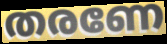
തരണേ